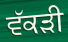
ਵੱਕੜੀ